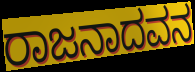
ರಾಜನಾದವನ